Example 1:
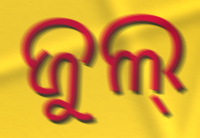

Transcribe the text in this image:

ଜୁଲ୍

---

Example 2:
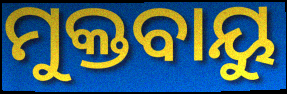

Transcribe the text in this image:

ମୁକ୍ତବାୟୁ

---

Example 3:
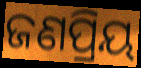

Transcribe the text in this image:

ଜଣପ୍ରିୟ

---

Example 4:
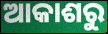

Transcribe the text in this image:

ଆକାଶରୁ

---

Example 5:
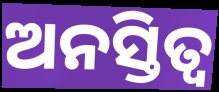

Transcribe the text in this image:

ଅନସ୍ତିତ୍ୱ